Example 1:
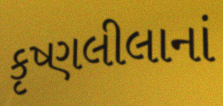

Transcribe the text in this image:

કૃષ્ણલીલાનાં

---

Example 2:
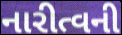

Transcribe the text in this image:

નારીત્વની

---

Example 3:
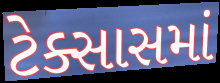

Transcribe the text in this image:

ટેક્સાસમાં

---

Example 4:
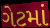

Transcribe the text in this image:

ગેટમાં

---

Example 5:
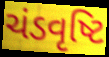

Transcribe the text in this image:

ચંડવૃષ્ટિ